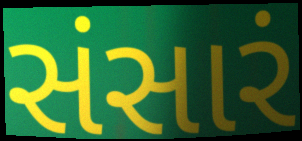
સંસારં